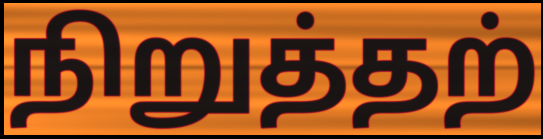
நிறுத்தற்